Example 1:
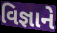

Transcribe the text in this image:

વિજ્ઞાને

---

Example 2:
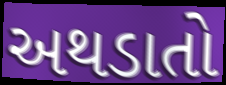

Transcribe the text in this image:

અથડાતો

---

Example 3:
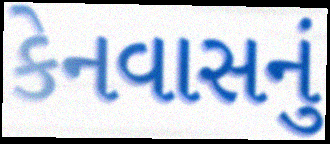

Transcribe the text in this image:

કેનવાસનું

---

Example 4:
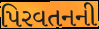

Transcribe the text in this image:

પિરવતનની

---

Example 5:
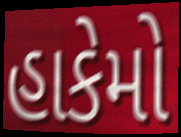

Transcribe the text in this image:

હાકેમો